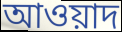
আওয়াদ